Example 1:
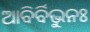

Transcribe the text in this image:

ଆବିର୍ବିଭୁନଃ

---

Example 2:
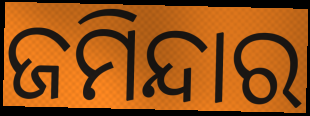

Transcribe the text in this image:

ଜମିନ୍ଦାର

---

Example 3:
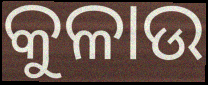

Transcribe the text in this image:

କୁଳାଉ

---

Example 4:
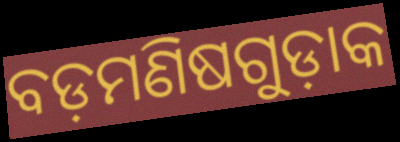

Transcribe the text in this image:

ବଡ଼ମଣିଷଗୁଡ଼ାକ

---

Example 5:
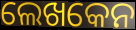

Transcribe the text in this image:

ଲେଖକେନ